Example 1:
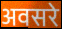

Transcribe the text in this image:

अवसरे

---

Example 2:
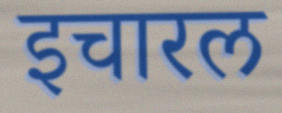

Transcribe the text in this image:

इचारल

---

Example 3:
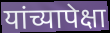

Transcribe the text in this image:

यांच्यापेक्षा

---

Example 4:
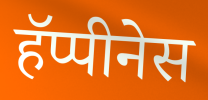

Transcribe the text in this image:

हॅप्पीनेस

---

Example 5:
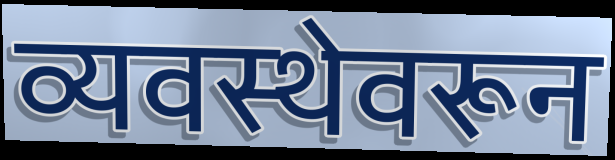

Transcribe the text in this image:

व्यवस्थेवरून